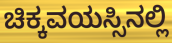
ಚಿಕ್ಕವಯಸ್ಸಿನಲ್ಲಿ